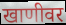
खाणीवर